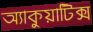
অ্যাকুয়াটিক্স